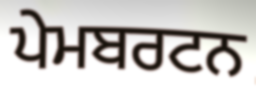
ਪੇਮਬਰਟਨ